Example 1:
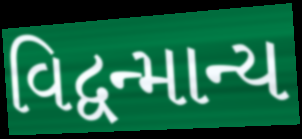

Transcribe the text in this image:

વિદ્વન્માન્ય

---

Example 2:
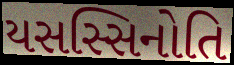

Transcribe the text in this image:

યસસ્સિનોતિ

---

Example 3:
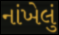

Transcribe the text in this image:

નાંખેલું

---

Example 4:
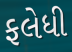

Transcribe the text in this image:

ફલેધી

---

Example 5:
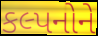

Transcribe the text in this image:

કલ્પનોને